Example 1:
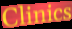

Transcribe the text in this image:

Clinics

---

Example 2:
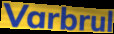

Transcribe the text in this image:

Varbrul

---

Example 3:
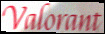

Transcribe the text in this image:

Valorant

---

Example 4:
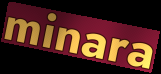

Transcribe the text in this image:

minara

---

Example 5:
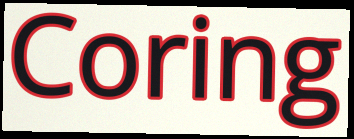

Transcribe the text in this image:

Coring